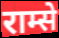
राम्से